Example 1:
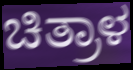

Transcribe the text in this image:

ಚಿತ್ರಾಳ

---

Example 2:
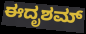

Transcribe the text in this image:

ಈದೃಶಮ್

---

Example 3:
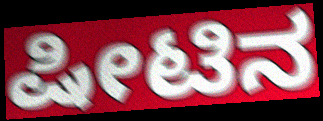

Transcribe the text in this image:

ಷೀಟಿನ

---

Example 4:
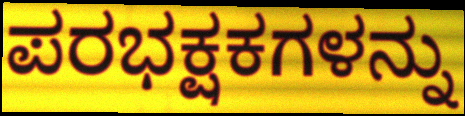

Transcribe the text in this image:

ಪರಭಕ್ಷಕಗಳನ್ನು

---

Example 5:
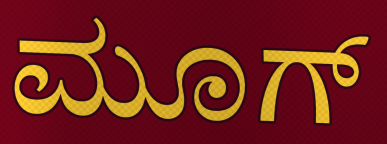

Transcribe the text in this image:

ಮೂಗ್